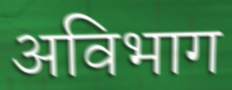
अविभाग